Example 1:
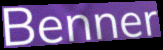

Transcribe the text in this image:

Benner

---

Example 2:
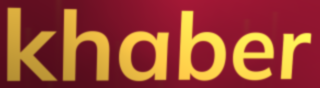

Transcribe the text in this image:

khaber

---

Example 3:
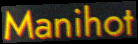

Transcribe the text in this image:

Manihot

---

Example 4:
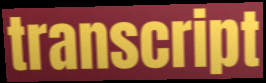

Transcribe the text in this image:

transcript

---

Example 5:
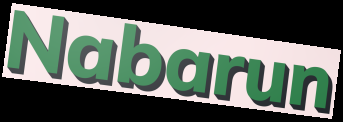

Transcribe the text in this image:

Nabarun